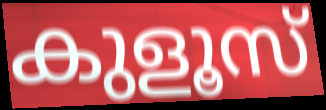
കുളൂസ്